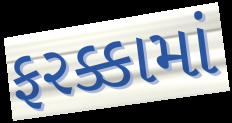
ફરક્કામાં